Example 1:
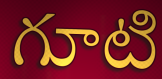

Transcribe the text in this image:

గూటి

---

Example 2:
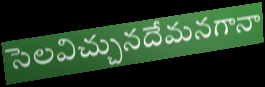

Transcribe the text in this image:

సెలవిచ్చునదేమనగానా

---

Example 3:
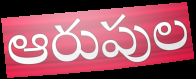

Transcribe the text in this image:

ఆరుపుల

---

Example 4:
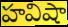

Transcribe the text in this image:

హవిషా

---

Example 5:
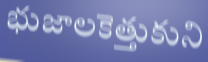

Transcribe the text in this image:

భుజాలకెత్తుకుని